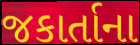
જકાર્તાના